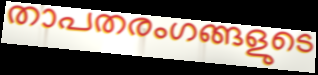
താപതരംഗങ്ങളുടെ